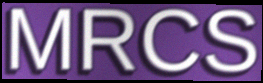
MRCS